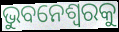
ଭୁବନେଶ୍ୱରକୁ